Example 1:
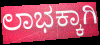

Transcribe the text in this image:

ಲಾಭಕ್ಕಾಗಿ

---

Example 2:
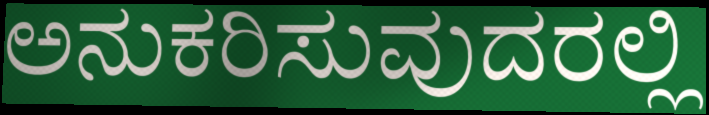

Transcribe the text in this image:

ಅನುಕರಿಸುವುದರಲ್ಲಿ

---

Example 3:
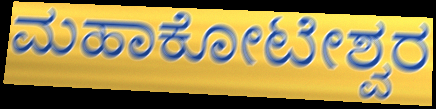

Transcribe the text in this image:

ಮಹಾಕೋಟೇಶ್ವರ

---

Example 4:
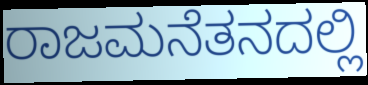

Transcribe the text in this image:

ರಾಜಮನೆತನದಲ್ಲಿ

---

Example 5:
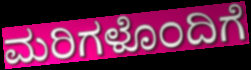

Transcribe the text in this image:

ಮರಿಗಳೊಂದಿಗೆ